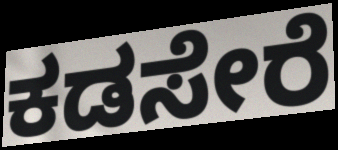
ಕಡಸೇರೆ